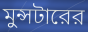
মুন্সটারের